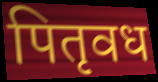
पितृवध